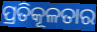
ପ୍ରତିକୂଳତାର